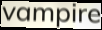
vampire